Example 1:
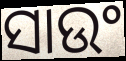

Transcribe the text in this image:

ସାଉଂ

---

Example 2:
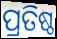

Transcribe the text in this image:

ପ୍ରତିଷ୍ଠ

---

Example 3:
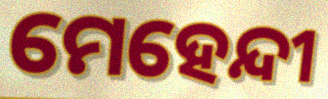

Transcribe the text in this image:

ମେହେନ୍ଦୀ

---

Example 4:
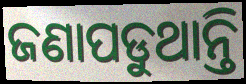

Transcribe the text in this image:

ଜଣାପଡୁଥାନ୍ତି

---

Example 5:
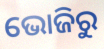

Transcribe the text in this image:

ଭୋଜିରୁ